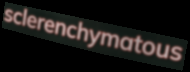
sclerenchymatous